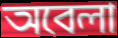
অবেলা